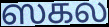
ஸகல